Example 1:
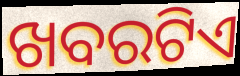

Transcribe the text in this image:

ଖବରଟିଏ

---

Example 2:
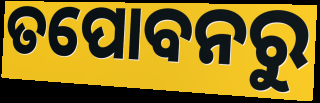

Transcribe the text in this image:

ତପୋବନରୁ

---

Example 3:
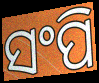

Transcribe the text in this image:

ସଂପି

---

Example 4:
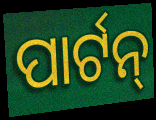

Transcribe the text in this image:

ପାର୍ଟନ୍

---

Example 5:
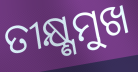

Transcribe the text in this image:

ତୀକ୍ଷ୍ଣମୁଖ